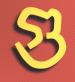
গু